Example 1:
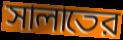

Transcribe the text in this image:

সালাতের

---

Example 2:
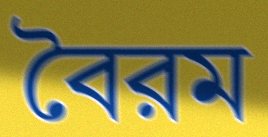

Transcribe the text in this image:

বৈরম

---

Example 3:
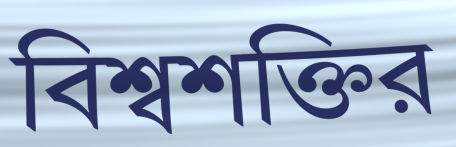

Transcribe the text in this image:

বিশ্বশক্তির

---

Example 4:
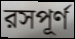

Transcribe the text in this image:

রসপূর্ণ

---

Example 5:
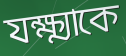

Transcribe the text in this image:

যক্ষ্মাকে